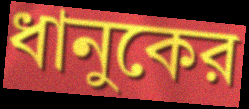
ধানুকের